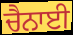
ਚੈਨਾਈ